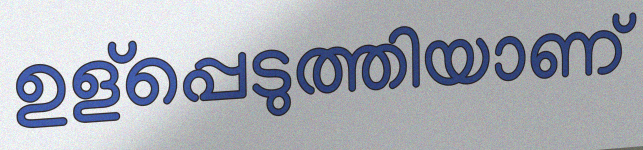
ഉള്പ്പെടുത്തിയാണ്